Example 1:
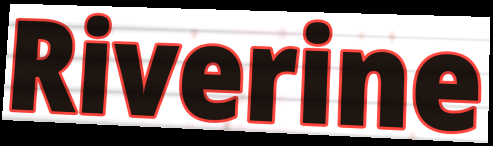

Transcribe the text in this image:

Riverine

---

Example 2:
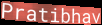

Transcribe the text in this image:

Pratibhav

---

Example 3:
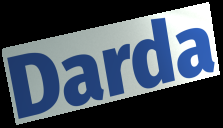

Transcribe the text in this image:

Darda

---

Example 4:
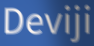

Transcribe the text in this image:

Deviji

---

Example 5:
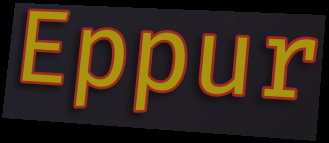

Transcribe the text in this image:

Eppur